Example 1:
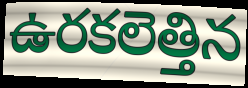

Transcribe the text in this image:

ఉరకలెత్తిన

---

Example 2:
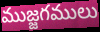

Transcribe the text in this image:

ముజ్జగములు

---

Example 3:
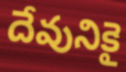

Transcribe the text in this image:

దేవునికై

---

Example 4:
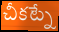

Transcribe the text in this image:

చీకట్నే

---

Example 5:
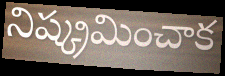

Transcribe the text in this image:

నిష్క్రమించాక